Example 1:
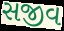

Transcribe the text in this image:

સજીવ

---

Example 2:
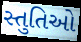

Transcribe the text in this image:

સ્તુતિઓ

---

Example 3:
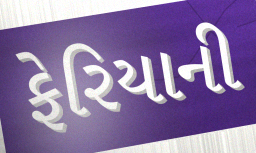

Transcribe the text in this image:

ફેરિયાની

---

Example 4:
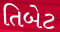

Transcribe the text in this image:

તિબેટ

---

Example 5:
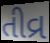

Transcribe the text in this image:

તીવ્ર